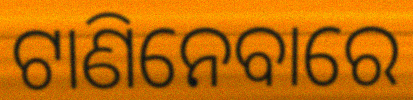
ଟାଣିନେବାରେ